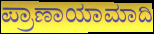
ಪ್ರಾಣಾಯಾಮಾದಿ